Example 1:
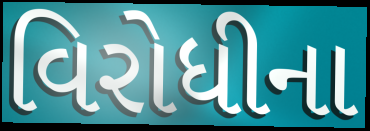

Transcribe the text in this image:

વિરોધીના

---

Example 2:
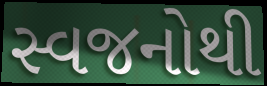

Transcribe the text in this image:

સ્વજનોથી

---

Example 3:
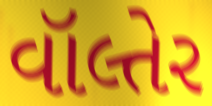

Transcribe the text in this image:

વૉલ્તેર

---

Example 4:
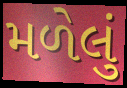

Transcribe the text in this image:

મળેલું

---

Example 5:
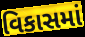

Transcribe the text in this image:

વિકાસમાં